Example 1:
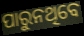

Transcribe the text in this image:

ପାରୁନଥିବେ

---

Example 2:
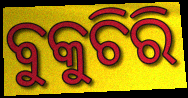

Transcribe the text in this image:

ବୁକୁଚିରି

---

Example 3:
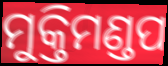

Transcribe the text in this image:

ମୁକ୍ତିମଣ୍ଡପ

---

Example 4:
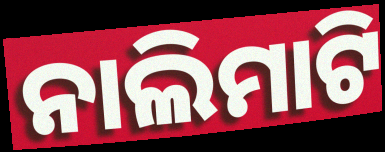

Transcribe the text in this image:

ନାଲିମାଟି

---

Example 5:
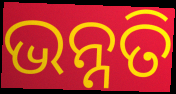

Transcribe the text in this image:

ଭନ୍ନତି